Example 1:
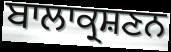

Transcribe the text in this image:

ਬਾਲਾਕ੍ਰਸ਼ਣਨ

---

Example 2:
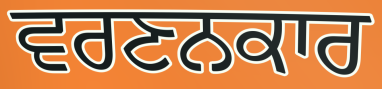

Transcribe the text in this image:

ਵਰਣਨਕਾਰ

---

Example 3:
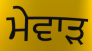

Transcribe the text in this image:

ਮੇਵਾੜ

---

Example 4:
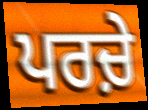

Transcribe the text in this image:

ਪਰਚ਼ੇ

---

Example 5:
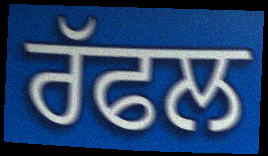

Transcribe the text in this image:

ਰੱਫਲ